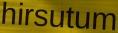
hirsutum